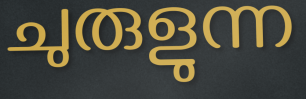
ചുരുളുന്ന